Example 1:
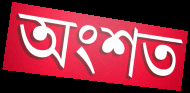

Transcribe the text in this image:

অংশত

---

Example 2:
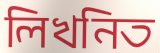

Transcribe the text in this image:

লিখনিত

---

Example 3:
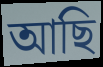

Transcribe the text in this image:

আছি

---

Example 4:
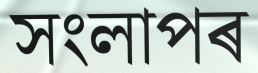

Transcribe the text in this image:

সংলাপৰ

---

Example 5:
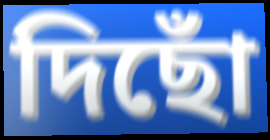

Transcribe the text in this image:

দিছোঁ